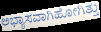
ಅಭ್ಯಾಸವಾಗಿಹೋಗಿತ್ತು